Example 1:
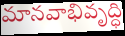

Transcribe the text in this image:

మానవాభివృద్ధి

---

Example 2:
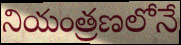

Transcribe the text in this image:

నియంత్రణలోనే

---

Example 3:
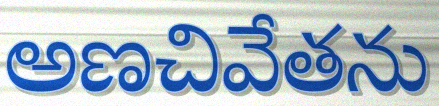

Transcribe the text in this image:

అణచివేతను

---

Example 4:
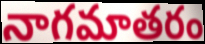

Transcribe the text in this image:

నాగమాతరం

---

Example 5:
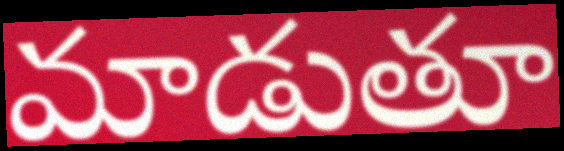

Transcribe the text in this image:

మాడుతూ